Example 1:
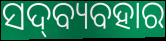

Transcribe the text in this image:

ସଦ୍‍ବ୍ୟବହାର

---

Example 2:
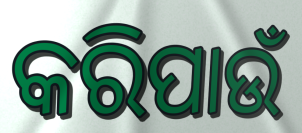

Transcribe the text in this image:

କରିପାଉଁ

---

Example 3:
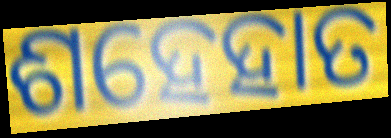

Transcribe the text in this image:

ଶହେହାତ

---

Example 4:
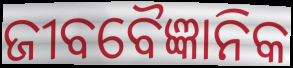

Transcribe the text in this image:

ଜୀବବୈଜ୍ଞାନିକ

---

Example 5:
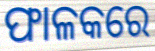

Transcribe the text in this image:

ଫାଳକରେ